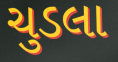
ચુડલા